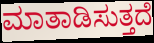
ಮಾತಾಡಿಸುತ್ತದೆ